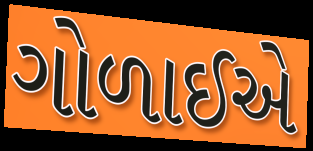
ગોળાઈએ